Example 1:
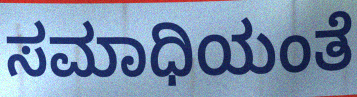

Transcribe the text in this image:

ಸಮಾಧಿಯಂತೆ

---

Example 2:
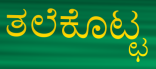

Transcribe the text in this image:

ತಲೆಕೊಟ್ಟ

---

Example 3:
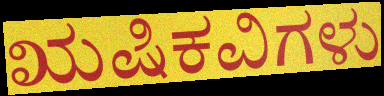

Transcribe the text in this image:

ಋಷಿಕವಿಗಳು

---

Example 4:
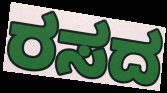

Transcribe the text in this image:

ರಸದ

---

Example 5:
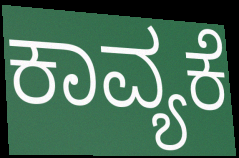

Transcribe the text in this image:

ಕಾವ್ಯಕೆ